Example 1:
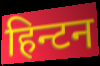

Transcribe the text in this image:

हिन्टन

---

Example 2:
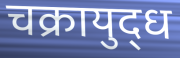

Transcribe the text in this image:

चक्रायुद्ध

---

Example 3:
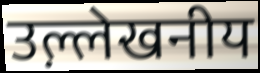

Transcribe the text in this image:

उल्ल़ेखनीय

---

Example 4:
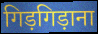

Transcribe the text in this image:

गिड़गिड़ाना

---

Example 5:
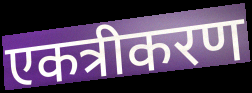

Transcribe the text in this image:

एकत्रीकरण